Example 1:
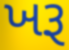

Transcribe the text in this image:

ખરૂ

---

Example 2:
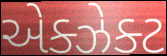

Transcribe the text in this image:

એક્ઝેક્ટ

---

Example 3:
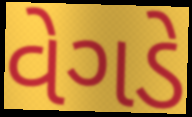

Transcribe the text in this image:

વેગડે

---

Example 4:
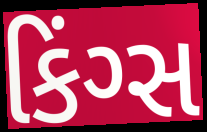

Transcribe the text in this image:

કિંગ્સ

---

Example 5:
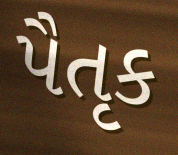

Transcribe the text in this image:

પૈતૃક